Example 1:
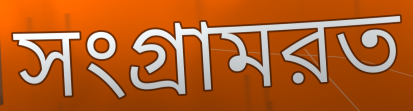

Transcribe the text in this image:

সংগ্রামরত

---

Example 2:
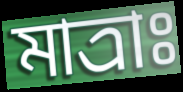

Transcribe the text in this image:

মাত্রাঃ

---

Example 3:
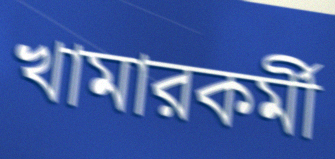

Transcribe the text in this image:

খামারকর্মী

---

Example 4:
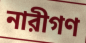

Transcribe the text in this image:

নারীগণ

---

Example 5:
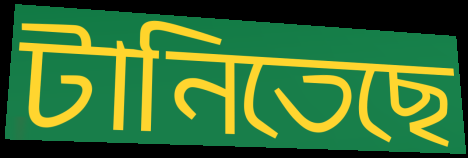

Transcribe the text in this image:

টানিতেছে